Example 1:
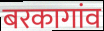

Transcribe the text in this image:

बरकागांव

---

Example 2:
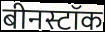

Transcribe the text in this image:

बीनस्टॉक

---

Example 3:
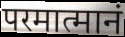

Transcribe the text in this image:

परमात्मानं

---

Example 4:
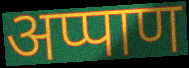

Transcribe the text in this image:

अप्पाण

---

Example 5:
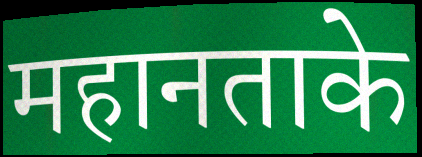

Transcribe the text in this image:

महानताके